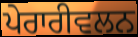
ਪੇਰਾਰੀਵਲਨ